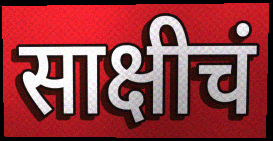
साक्षीचं